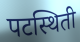
पटस्थिती